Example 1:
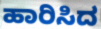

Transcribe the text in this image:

ಹಾರಿಸಿದ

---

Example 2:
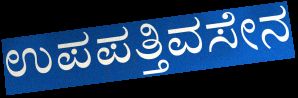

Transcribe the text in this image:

ಉಪಪತ್ತಿವಸೇನ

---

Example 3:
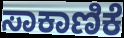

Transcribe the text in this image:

ಸಾಕಾಣಿಕೆ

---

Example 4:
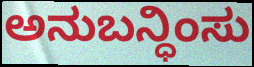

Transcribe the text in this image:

ಅನುಬನ್ಧಿಂಸು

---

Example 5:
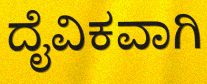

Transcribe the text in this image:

ದೈವಿಕವಾಗಿ